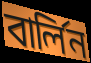
বাৰ্লিন